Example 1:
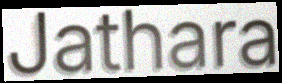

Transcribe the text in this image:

Jathara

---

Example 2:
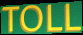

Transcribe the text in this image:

TOLL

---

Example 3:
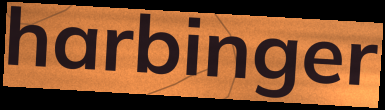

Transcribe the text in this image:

harbinger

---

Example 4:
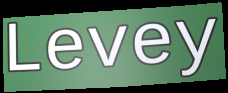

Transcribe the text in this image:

Levey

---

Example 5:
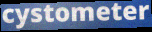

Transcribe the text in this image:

cystometer